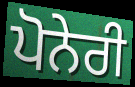
ਪੋਨੇਰੀ